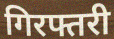
गिरफ्तरी